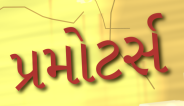
પ્રમોટર્સ